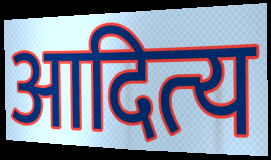
आदित्‍य